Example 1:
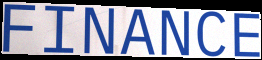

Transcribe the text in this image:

FINANCE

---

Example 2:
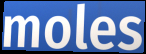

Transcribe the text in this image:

moles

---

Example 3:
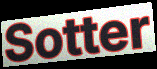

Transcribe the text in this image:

Sotter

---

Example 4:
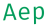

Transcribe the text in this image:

Aep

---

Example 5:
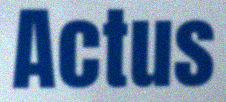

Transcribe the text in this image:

Actus